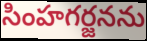
సింహగర్జనను